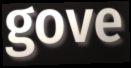
gove